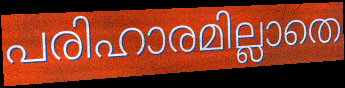
പരിഹാരമില്ലാതെ